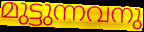
മുട്ടുന്നവനു